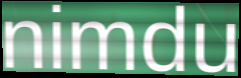
nimdu